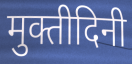
मुक्तीदिनी